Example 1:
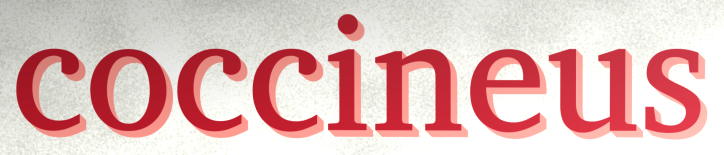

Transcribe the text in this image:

coccineus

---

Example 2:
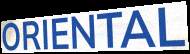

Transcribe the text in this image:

ORIENTAL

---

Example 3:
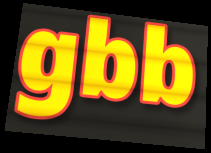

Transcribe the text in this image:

gbb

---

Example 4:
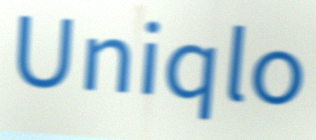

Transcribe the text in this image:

Uniqlo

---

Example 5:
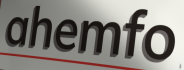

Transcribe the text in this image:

ahemfo